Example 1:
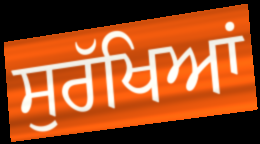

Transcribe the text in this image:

ਸੁਰੱਖਿਆਂ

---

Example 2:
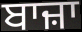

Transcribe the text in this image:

ਬਾਜ਼ਾ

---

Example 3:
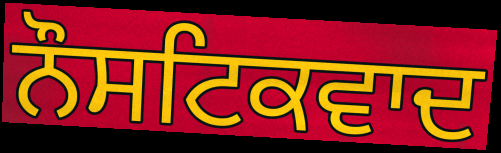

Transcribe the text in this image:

ਨੌਸਟਿਕਵਾਦ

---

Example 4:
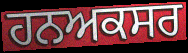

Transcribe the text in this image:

ਹਨਅਕਸਰ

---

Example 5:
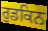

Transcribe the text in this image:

ਰੁਡਕਿਨ